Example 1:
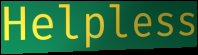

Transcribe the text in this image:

Helpless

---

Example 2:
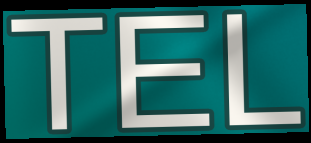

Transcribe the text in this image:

TEL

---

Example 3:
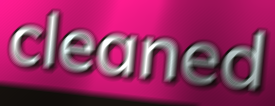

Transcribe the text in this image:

cleaned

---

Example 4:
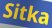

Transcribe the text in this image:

Sitka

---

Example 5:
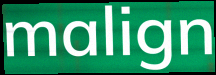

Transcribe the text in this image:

malign